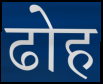
ढोह